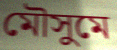
মৌসুমে